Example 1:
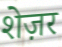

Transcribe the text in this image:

शेज़र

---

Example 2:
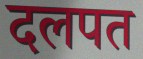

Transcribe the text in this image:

दलपत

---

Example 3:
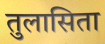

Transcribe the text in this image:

तुलासिता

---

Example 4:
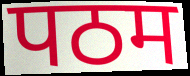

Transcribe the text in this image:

पठम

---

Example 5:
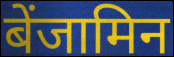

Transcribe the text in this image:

बेंजामिन